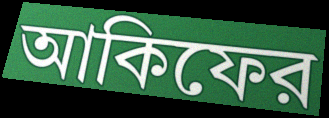
আকিফের